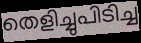
തെളിച്ചുപിടിച്ച